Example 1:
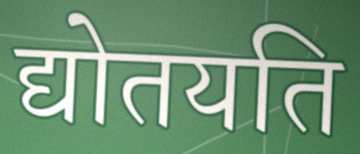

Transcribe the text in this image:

द्योतयति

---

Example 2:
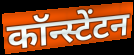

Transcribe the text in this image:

कॉन्स्टेंटन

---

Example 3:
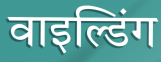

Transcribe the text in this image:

वाइल्डिंग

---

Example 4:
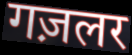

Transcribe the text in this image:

गज़लर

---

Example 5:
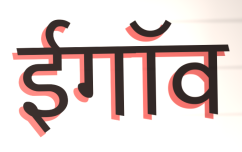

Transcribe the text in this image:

ईगॉव